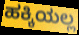
ಹಕ್ಕಿಯಲ್ಲ